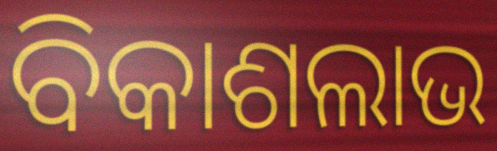
ବିକାଶଲାଭ